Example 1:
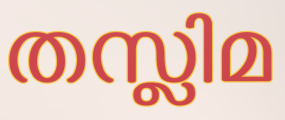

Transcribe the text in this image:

തസ്ലിമ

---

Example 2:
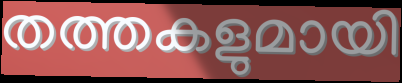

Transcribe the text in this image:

തത്തകളുമായി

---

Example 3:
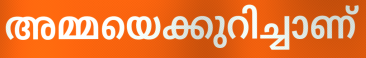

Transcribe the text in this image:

അമ്മയെക്കുറിച്ചാണ്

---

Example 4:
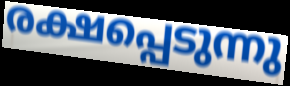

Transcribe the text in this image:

രക്ഷപ്പെടുന്നു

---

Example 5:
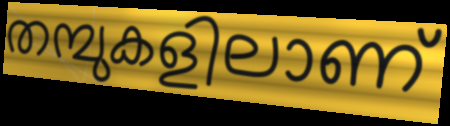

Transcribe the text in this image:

തമ്പുകളിലാണ്